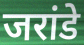
जरांडे